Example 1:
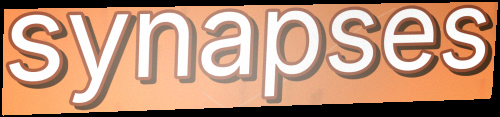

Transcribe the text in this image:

synapses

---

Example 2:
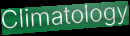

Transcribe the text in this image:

Climatology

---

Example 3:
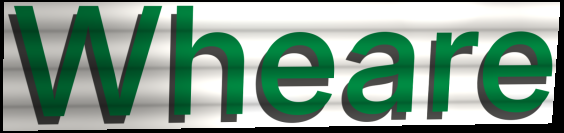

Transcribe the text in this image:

Wheare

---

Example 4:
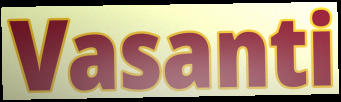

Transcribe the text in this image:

Vasanti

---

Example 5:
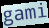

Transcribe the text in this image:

gami